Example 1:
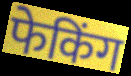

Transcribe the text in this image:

फेकिंग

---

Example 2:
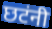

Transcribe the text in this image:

छटंनी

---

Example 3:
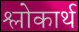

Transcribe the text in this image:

श्लोकार्थ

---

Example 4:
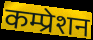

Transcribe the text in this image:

कम्प्रेशन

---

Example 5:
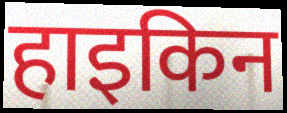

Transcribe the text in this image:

हाइकिन